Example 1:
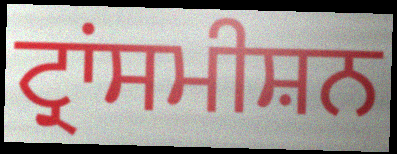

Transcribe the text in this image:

ਟ੍ਰਾਂਸਮੀਸ਼ਨ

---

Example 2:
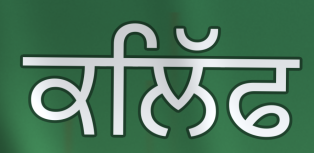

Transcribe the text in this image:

ਕਲਿੱਫ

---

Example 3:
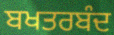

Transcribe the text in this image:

ਬਖਤਰਬੰਦ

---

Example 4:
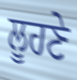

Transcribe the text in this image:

ਲੂਹਣੇ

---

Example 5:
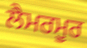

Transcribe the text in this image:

ਲੈਮਰਮੂਰ